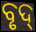
ବୃଦ୍